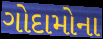
ગોદામોના